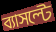
ব্যাসল্টে